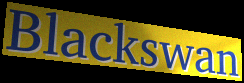
Blackswan